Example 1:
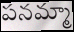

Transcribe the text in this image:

పనమ్మా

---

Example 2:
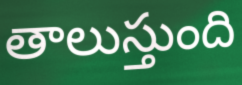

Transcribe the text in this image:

తాలుస్తుంది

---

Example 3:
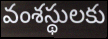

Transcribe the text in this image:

వంశస్థులకు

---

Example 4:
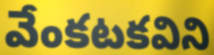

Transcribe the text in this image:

వేంకటకవిని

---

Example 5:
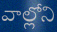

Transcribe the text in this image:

వాల్లోని